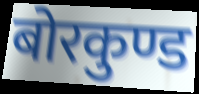
बोरकुण्ड